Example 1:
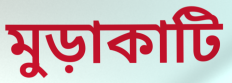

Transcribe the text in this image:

মুড়াকাটি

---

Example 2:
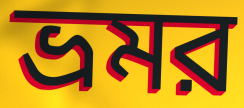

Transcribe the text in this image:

ভ্রমর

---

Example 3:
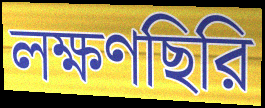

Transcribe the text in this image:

লক্ষণছিরি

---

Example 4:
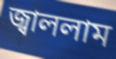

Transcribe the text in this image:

জ্বাললাম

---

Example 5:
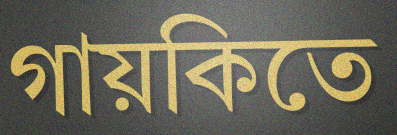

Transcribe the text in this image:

গায়কিতে